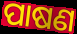
ପାଷଣ